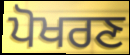
ਪੋਖਰਣ